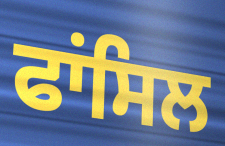
ਫਾਂਸਿਲ